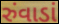
રુંવાડાં